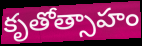
కృతోత్సాహం